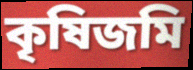
কৃষিজমি